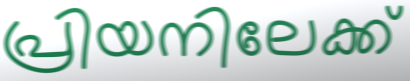
പ്രിയനിലേക്ക്